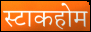
स्टाकहोम